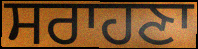
ਸਰਾਹਣਾ